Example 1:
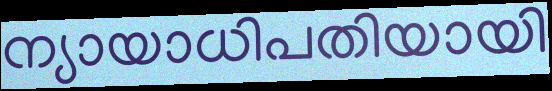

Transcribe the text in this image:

ന്യായാധിപതിയായി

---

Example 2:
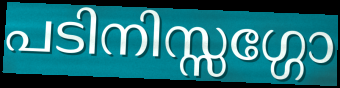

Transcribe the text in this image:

പടിനിസ്സഗ്ഗോ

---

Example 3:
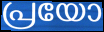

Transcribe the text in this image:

പ്രയോ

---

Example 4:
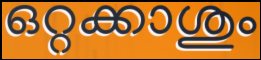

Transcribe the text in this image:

ഒറ്റക്കാശും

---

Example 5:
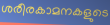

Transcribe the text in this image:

ശരീരകാമനകളുടെ